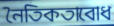
নৈতিকতাবোধ